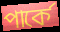
পার্কে